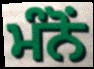
ਮੰਨੋਂ